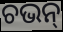
ଚଭନ୍